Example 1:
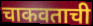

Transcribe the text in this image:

चाकवताची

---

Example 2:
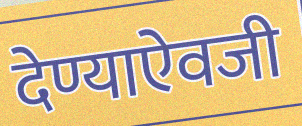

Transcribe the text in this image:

देण्याऐवजी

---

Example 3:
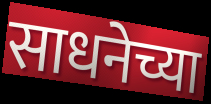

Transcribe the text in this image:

साधनेच्या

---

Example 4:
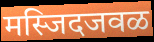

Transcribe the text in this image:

मस्जिदजवळ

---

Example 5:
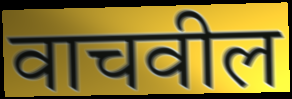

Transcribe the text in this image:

वाचवील